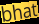
bhat